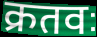
क्रतवः